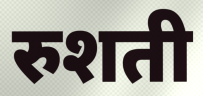
रुशती